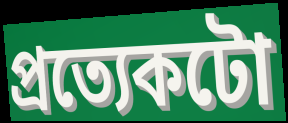
প্ৰত্যেকটো